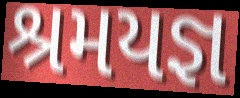
શ્રમયજ્ઞ